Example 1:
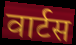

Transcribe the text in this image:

वार्टस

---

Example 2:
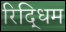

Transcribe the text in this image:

रिद्धिम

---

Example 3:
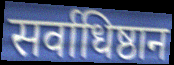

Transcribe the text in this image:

सर्वाधिष्ठान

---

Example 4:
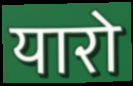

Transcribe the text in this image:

यारो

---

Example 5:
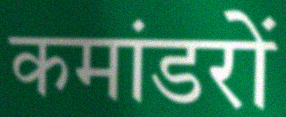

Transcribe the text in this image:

कमांडरों